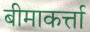
बीमाकर्त्ता